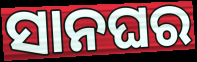
ସାନଘର